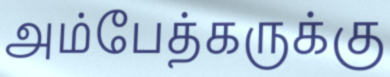
அம்பேத்கருக்கு